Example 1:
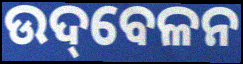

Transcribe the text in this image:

ଉଦ୍‌ବେଳନ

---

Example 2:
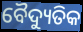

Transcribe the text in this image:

ବୈଦ୍ୟୁତିକ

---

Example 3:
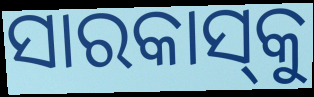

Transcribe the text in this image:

ସାରକାସ୍‌କୁ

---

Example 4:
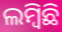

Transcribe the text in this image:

ଲମ୍ବିଛି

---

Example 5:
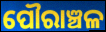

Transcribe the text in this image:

ପୌରାଞ୍ଚଳ